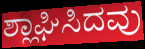
ಶ್ಲಾಘಿಸಿದವು